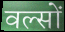
वल्सों